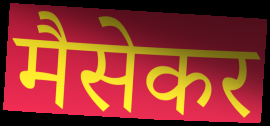
मैसेकर